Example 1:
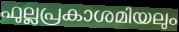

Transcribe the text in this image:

ഫുല്ലപ്രകാശമിയലും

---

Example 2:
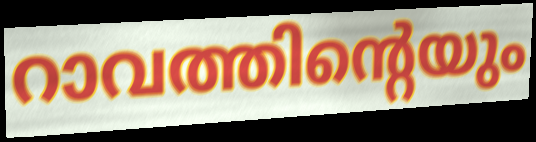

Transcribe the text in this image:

റാവത്തിന്റെയും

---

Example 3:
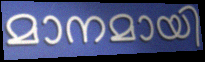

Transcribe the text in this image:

മാനമായി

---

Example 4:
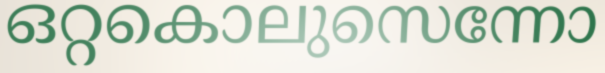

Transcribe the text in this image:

ഒറ്റകൊലുസെന്നോ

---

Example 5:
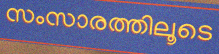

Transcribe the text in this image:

സംസാരത്തിലൂടെ